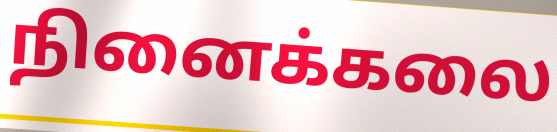
நினைக்கலை